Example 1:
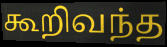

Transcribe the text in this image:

கூறிவந்த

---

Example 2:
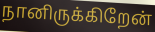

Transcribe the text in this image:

நானிருக்கிறேன்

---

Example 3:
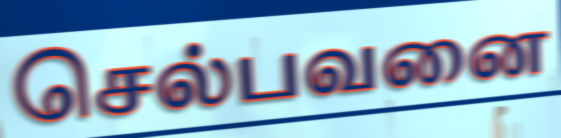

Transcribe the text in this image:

செல்பவனை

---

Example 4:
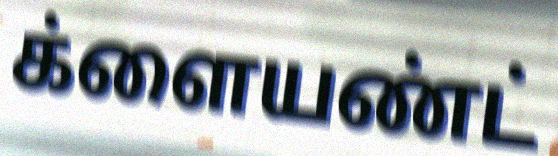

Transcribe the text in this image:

க்ளையண்ட்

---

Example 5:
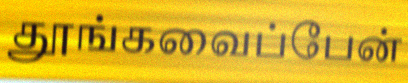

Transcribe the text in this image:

தூங்கவைப்பேன்